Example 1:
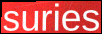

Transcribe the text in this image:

suries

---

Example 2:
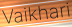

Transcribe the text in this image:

Vaikhari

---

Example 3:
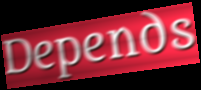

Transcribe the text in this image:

Depends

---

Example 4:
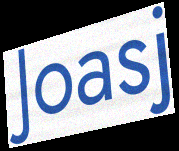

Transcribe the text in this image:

Joasj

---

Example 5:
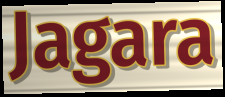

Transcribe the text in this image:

Jagara